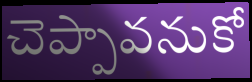
చెప్పావనుకో